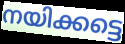
നയിക്കട്ടെ